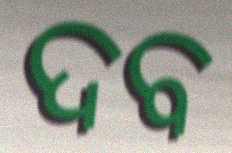
ଦବ